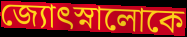
জ্যোৎস্নালোকে